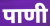
पाणी